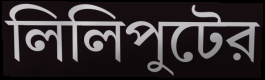
লিলিপুটের